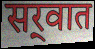
सर्वात